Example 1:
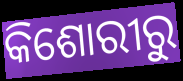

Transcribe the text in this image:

କିଶୋରୀରୁ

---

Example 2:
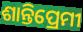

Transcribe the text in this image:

ଶାନ୍ତିପ୍ରେମୀ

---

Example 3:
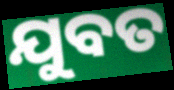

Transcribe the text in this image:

ଯୁବତ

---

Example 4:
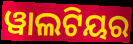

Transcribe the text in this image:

ୱାଲଟିୟର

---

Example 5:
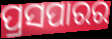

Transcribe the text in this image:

ପ୍ରସପାରର